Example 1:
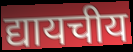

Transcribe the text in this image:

द्यायचीय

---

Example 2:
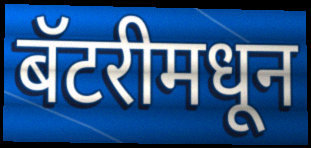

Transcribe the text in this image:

बॅटरीमधून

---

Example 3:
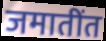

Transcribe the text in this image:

जमातींत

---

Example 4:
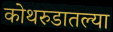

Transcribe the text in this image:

कोथरुडातल्या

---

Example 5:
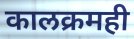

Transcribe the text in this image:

कालक्रमही